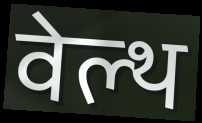
वेल्‍थ